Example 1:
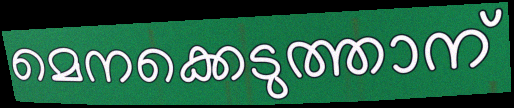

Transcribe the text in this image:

മെനക്കെടുത്താന്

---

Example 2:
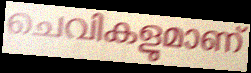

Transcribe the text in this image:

ചെവികളുമാണ്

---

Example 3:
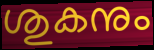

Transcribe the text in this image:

ശുകനും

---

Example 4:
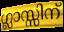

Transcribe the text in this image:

ഗ്ലാസ്സിന്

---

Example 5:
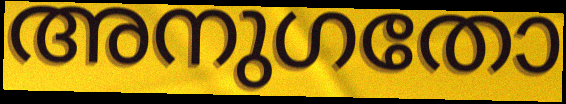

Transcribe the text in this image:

അനുഗതോ